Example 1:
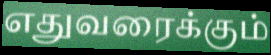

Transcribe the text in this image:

எதுவரைக்கும்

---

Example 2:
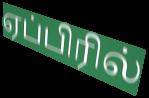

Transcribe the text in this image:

ஏப்பிரில்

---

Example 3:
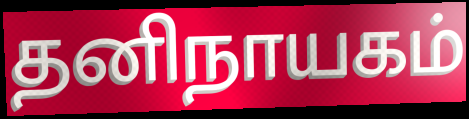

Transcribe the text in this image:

தனிநாயகம்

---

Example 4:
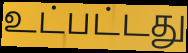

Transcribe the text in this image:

உட்பட்டது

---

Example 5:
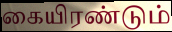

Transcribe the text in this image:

கையிரண்டும்